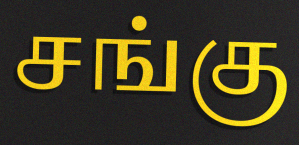
சங்கு